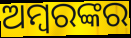
ଅମ୍ବରଙ୍କର